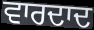
ਵਾਰਦਾਦ